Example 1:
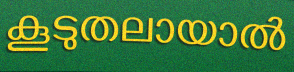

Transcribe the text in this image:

കൂടുതലായാൽ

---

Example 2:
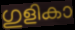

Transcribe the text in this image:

ഗുളികാ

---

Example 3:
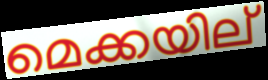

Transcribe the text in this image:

മെക്കയില്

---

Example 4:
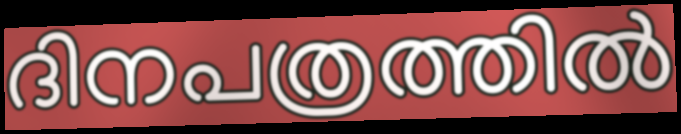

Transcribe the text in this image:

ദിനപത്രത്തിൽ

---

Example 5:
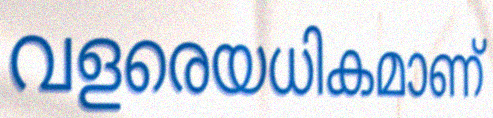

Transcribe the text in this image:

വളരെയധികമാണ്